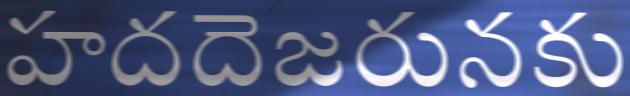
హదదెజరునకు